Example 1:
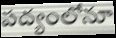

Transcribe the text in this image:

పద్యంలోనూ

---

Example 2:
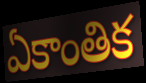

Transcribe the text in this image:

ఏకాంతిక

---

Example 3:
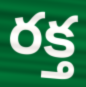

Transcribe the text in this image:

రక్త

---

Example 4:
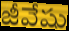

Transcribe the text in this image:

జీవేషు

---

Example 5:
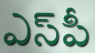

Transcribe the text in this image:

ఎస్‌పీ